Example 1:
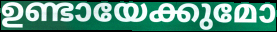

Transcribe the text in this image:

ഉണ്ടായേക്കുമോ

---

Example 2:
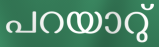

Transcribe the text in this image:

പറയാറു്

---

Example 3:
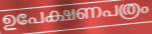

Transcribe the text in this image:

ഉപേക്ഷണപത്രം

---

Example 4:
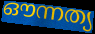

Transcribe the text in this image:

ഔന്നത്യ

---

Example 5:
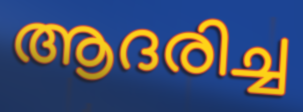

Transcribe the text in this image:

ആദരിച്ച